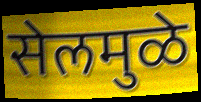
सेलमुळे